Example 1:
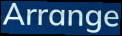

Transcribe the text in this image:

Arrange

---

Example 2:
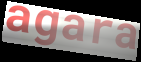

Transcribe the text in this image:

agara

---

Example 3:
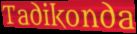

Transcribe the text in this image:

Tadikonda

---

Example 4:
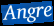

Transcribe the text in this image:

Angre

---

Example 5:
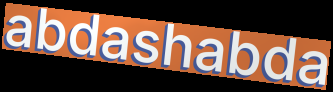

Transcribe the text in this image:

abdashabda